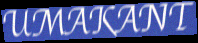
UMAKANT